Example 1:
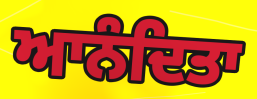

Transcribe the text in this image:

ਆਨੰਦਿਤਾ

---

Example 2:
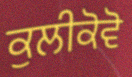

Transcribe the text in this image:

ਕੁਲੀਕੋਵੋ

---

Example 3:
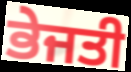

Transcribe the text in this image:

ਭੇਜਤੀ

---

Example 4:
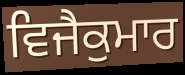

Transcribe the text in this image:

ਵਿਜੈਕੁਮਾਰ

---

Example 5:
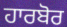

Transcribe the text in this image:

ਹਾਰਬੋਰ